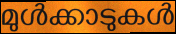
മുൾക്കാടുകൾ